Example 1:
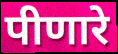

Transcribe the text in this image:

पीणारे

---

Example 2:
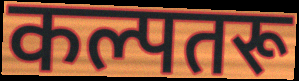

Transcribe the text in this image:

कल्पतरू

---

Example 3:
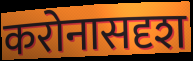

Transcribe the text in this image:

करोनासदृश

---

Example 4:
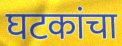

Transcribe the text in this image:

घटकांचा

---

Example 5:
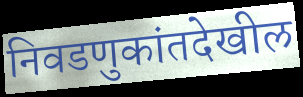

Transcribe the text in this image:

निवडणुकांतदेखील